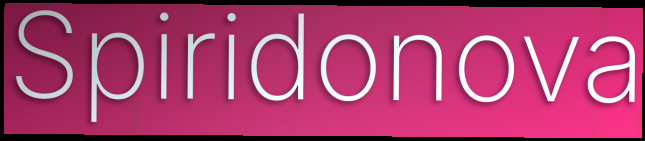
Spiridonova